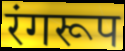
रंगरूप